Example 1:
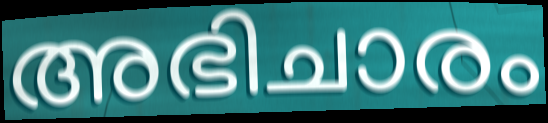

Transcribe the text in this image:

അഭിചാരം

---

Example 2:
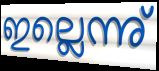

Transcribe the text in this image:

ഇല്ലെന്നു്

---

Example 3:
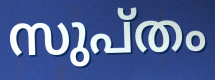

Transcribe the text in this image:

സുപ്തം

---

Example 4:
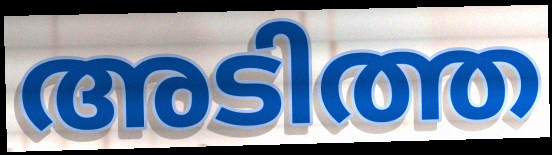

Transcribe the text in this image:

അടിത്ത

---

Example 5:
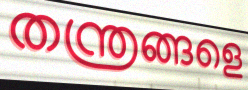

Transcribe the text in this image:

തന്ത്രങ്ങളെ